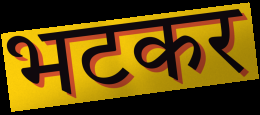
भटकर